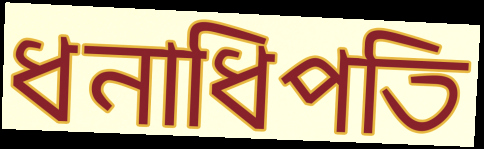
ধনাধিপতি